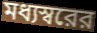
মধ্যস্বরের